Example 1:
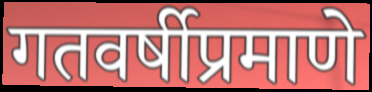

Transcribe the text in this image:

गतवर्षीप्रमाणे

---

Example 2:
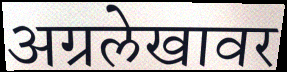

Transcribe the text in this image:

अग्रलेखावर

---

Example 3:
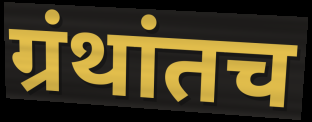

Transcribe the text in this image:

ग्रंथांतच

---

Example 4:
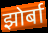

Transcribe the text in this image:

झोर्बा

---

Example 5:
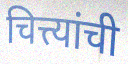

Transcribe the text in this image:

चित्त्यांची